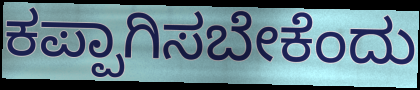
ಕಪ್ಪಾಗಿಸಬೇಕೆಂದು